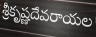
శ్రీకృష్ణదేవరాయల